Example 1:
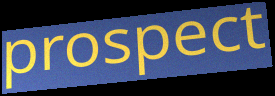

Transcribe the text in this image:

prospect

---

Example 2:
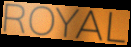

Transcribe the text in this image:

ROYAL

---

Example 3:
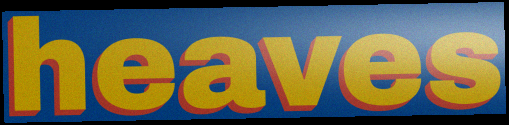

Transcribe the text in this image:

heaves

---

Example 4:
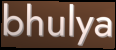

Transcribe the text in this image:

bhulya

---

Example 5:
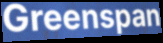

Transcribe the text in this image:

Greenspan